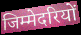
जिम्मेदरियों